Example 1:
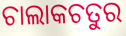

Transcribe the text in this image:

ଚାଲାକଚତୁର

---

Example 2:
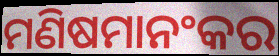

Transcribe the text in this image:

ମଣିଷମାନଂକର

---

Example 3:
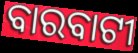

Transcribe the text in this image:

ବାରବାଟୀ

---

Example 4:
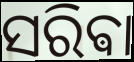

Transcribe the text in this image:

ସରିଵା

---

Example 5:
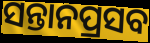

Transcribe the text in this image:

ସନ୍ତାନପ୍ରସବ